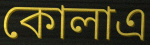
কোলাএ